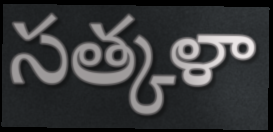
సత్కళా